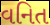
વનિત